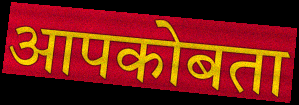
आपकोबता